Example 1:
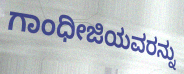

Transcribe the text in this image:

ಗಾಂಧೀಜಿಯವರನ್ನು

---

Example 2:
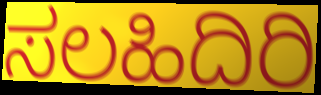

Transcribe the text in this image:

ಸಲಹಿದಿರಿ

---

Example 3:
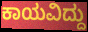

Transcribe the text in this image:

ಕಾಯವಿದ್ದು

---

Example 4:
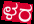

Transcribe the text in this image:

ಳರ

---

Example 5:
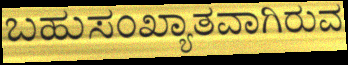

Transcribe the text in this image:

ಬಹುಸಂಖ್ಯಾತವಾಗಿರುವ